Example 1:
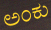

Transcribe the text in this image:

ಅಂಕು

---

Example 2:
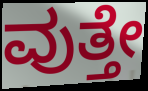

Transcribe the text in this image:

ವುತ್ತೇ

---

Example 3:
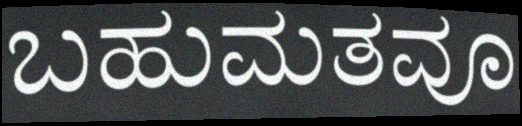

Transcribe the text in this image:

ಬಹುಮತವೂ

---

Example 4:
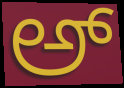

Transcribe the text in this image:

ಅ್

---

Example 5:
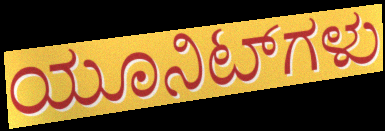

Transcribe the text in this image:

ಯೂನಿಟ್‌ಗಳು